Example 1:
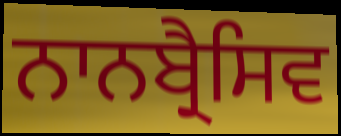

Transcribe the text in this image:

ਨਾਨਬ੍ਰੈਸਿਵ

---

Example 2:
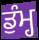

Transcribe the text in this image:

ਡੁੰਮ੍ਹ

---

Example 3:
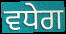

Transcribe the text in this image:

ਵਧੇਗ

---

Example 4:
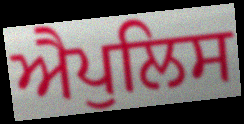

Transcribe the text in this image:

ਐਪੁਲਿਸ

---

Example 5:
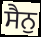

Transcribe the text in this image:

ਸੈਨੁ